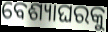
ବେଶ୍ୟାଘରକୁ